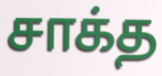
சாக்த